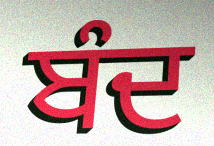
ਬੰਦ